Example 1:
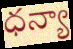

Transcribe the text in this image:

ధన్యా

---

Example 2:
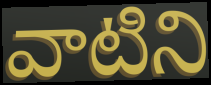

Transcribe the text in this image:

వాటిని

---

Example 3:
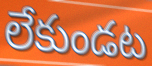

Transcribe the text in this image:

లేకుండట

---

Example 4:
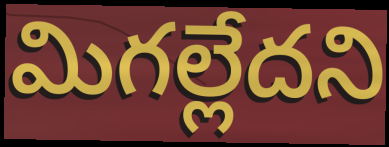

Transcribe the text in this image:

మిగల్లేదని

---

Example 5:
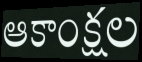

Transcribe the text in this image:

ఆకాంక్షల